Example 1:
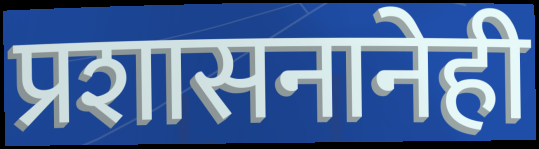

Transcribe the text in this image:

प्रशासनानेही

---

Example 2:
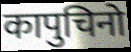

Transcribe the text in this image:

कापुचिनो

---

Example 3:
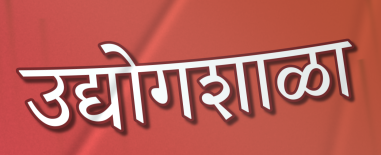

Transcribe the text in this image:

उद्योगशाळा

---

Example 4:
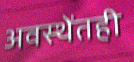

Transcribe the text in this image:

अवस्थेंतही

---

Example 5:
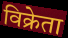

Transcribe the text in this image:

विक्रेता